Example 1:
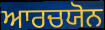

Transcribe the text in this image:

ਆਰਚਯੋਨ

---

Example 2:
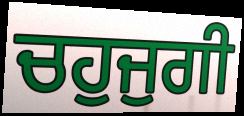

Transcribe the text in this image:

ਚਹੁਜੁਗੀ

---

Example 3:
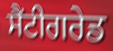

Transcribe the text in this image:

ਸੈਂਟੀਗਰੇਡ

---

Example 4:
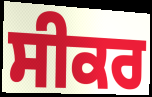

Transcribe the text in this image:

ਸੀਕਰ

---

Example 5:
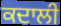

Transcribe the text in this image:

ਕਦਾਲੀ